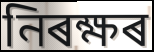
নিৰক্ষৰ